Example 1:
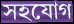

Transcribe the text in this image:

সহযোগ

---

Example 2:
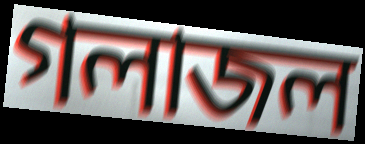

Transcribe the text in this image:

গলাজল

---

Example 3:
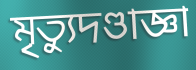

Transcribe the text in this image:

মৃত্যুদণ্ডাজ্ঞা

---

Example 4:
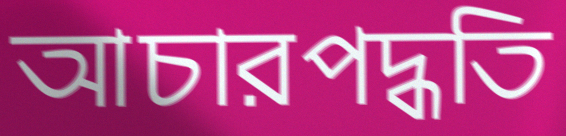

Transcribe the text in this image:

আচারপদ্ধতি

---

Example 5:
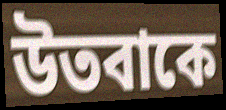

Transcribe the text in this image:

উতবাকে